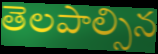
తెలపాల్సిన